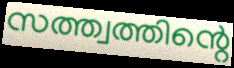
സത്ത്വത്തിന്റെ